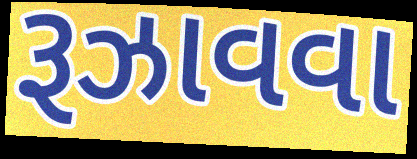
રૂઝાવવા